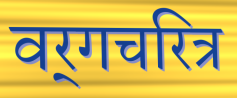
वर्गचरित्र